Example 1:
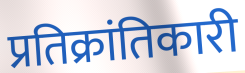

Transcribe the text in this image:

प्रतिक्रांतिकारी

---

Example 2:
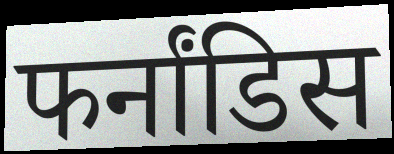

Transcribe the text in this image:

फर्नांडिस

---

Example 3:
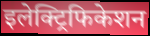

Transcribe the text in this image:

इलेक्ट्रिफिकेशन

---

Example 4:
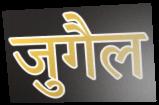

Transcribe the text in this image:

जुगैल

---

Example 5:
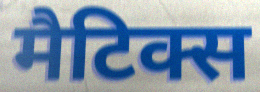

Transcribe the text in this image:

मैटिक्स